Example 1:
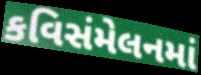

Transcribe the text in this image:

કવિસંમેલનમાં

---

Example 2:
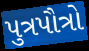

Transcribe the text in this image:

પુત્રપૌત્રો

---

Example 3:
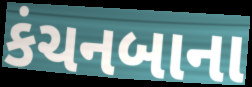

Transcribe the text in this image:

કંચનબાના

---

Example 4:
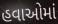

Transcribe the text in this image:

હવાઓમાં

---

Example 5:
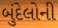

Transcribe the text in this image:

બુંદેલોની